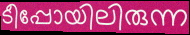
ടീപ്പോയിലിരുന്ന